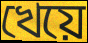
খেয়ে